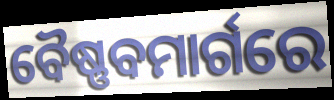
ବୈଷ୍ଣବମାର୍ଗରେ